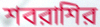
শবরাশির